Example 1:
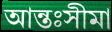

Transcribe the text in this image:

আন্তঃসীমা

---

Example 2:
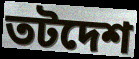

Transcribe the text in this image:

তটদেশ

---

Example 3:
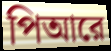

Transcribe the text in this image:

পিআরে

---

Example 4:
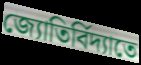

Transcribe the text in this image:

জ্যোতির্বিদ্যাতে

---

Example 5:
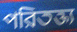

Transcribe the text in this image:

পরিতক্ত্য